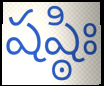
షష్ఠిః